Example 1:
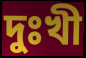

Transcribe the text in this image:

দুঃখী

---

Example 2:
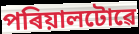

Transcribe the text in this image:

পৰিয়ালটোৱে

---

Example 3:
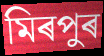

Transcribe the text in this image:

মিৰপুৰ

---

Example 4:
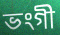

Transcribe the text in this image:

ভংগী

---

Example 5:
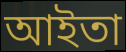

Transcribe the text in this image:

আইতা